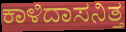
ಕಾಳಿದಾಸನಿತ್ತ